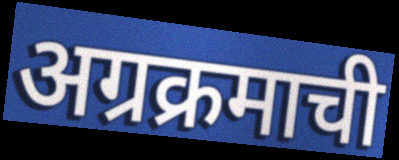
अग्रक्रमाची